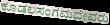
ಕೂಡಲಸಂಗಮದೇವರು